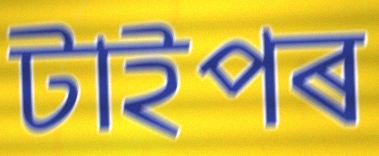
টাইপৰ